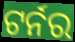
ଟର୍ନର